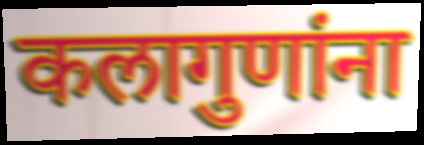
कलागुणांना